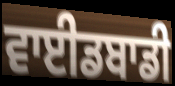
ਵਾਈਡਬਾਡੀ